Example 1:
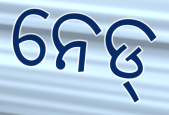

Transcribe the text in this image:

ନେଡ୍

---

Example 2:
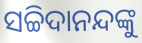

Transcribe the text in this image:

ସଚ୍ଚିଦାନନ୍ଦଙ୍କୁ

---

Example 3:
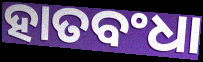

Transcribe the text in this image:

ହାତବଂଧା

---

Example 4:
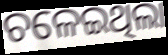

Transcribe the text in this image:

ଚଳେଇଥିଲା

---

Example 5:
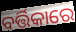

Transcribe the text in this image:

ବର୍ତ୍ତିକାରେ